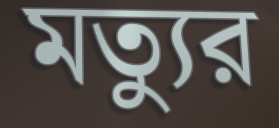
মত্যুর